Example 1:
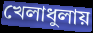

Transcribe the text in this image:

খেলাধুলায়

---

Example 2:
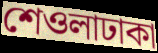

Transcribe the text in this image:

শেওলাঢাকা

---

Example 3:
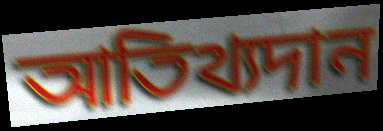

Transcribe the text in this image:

আতিথ্যদান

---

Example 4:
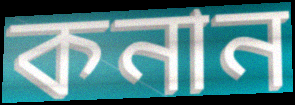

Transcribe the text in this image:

কনান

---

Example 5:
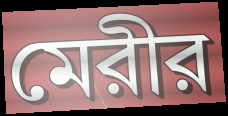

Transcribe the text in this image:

মেরীর